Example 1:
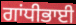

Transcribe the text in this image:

ਗਾਂਧੀਭਾਈ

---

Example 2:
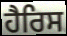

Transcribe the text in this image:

ਹੈਰਿਸ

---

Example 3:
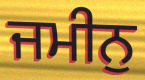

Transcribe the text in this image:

ਜਮੀਨੁ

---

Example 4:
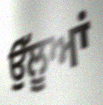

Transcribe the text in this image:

ਉੱਲੂਆਂ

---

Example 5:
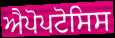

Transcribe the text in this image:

ਐਪੋਪਟੋਸਿਸ